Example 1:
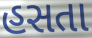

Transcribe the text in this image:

હસતા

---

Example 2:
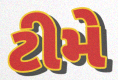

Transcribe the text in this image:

ટીમે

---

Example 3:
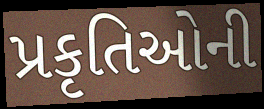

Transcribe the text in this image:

પ્રકૃતિઓની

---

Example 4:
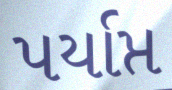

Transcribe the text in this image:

પર્યાપ્ત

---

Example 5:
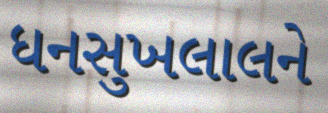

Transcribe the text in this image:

ધનસુખલાલને